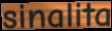
sinalita